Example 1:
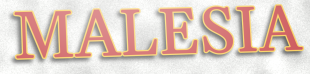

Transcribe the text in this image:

MALESIA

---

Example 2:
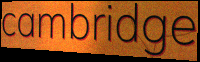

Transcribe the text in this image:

cambridge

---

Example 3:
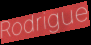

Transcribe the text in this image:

Rodrigue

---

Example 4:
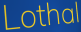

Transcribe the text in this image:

Lothal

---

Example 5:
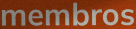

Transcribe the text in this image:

membros